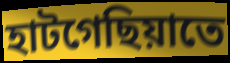
হাটগেছিয়াতে